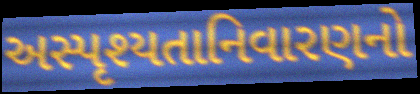
અસ્પૃશ્યતાનિવારણનો